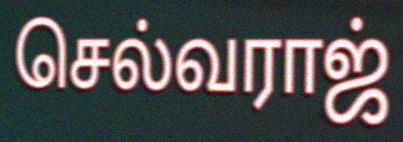
செல்வராஜ்